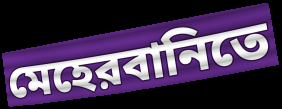
মেহেরবানিতে